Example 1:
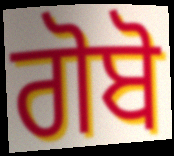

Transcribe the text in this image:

ਗੋਬੋ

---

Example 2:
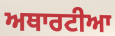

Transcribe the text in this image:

ਅਥਾਰਟੀਆ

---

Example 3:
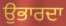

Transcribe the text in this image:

ਉਭਾਰਦਾ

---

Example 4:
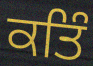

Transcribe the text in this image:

ਕਤਿੰ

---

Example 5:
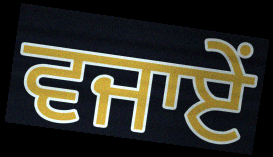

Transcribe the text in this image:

ਵਜਾਏਂ